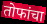
तोफांचा